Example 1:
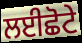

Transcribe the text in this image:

ਲਈਛੋਟੇ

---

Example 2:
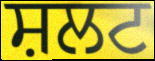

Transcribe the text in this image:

ਸ਼ਲਟ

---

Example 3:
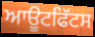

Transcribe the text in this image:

ਆਊਟਫਿੱਟਸ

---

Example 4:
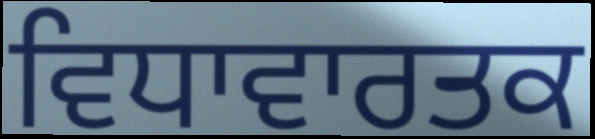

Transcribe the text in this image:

ਵਿਧਾਵਾਰਤਕ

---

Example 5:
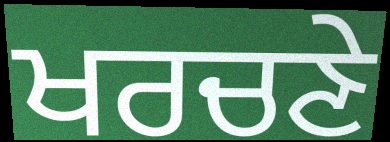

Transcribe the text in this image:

ਖਰਚਣੇ